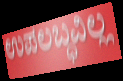
ಉಪಲಬ್ಧವಿಲ್ಲ